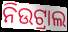
ନିଉଟ୍ରାଲ